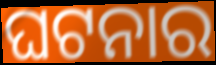
ଘଟନାର